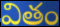
వితం